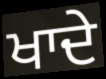
ਖਾਦੇ